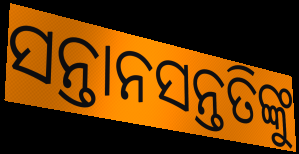
ସନ୍ତାନସନ୍ତତିଙ୍କୁ